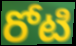
రోటి